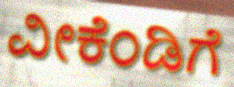
ವೀಕೆಂಡಿಗೆ